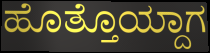
ಹೊತ್ತೊಯ್ದಾಗ